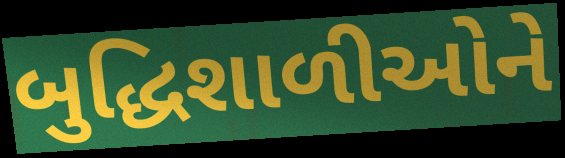
બુદ્ધિશાળીઓને